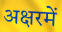
अक्षरमें